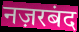
नज़रबंद